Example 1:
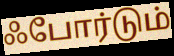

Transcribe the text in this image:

ஃபோர்டும்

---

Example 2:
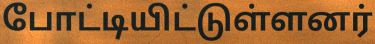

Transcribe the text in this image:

போட்டியிட்டுள்ளனர்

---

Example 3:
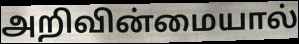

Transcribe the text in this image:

அறிவின்மையால்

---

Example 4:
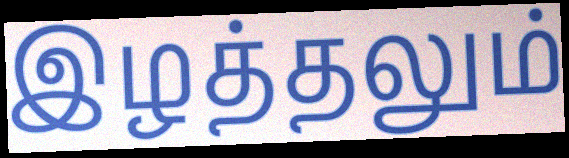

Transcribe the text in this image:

இழத்தலும்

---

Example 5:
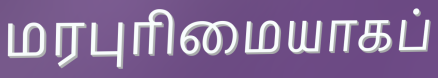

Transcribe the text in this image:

மரபுரிமையாகப்